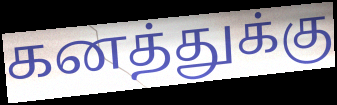
கனத்துக்கு